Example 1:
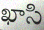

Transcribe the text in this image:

ఖాసి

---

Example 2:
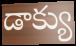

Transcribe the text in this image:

డాక్యు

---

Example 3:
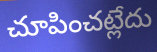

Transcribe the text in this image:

చూపించట్లేదు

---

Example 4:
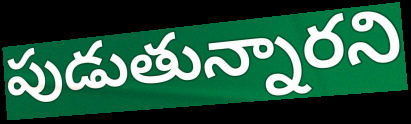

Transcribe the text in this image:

పుడుతున్నారని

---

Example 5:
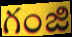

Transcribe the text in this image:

గంజి